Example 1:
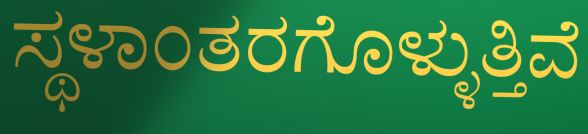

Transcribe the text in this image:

ಸ್ಥಳಾಂತರಗೊಳ್ಳುತ್ತಿವೆ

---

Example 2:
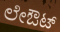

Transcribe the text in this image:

ಲೇಔಟ್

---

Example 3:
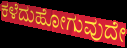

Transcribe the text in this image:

ಕಳೆದುಹೋಗುವುದೇ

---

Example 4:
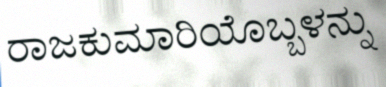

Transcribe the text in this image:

ರಾಜಕುಮಾರಿಯೊಬ್ಬಳನ್ನು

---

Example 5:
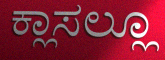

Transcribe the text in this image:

ಕ್ಲಾಸಲ್ಲೂ